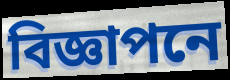
বিজ্ঞাপনে